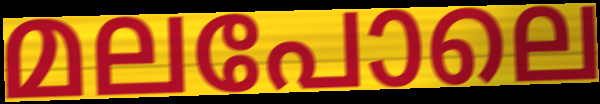
മലപോലെ